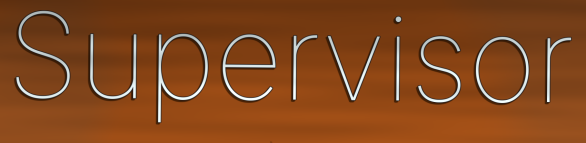
Supervisor